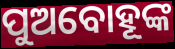
ପୁଅବୋହୂଙ୍କ